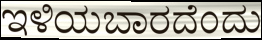
ಇಳಿಯಬಾರದೆಂದು